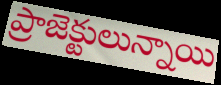
ప్రాజెక్టులున్నాయి